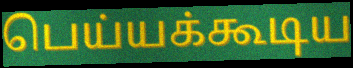
பெய்யக்கூடிய